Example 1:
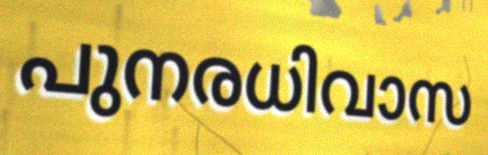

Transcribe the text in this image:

പുനരധിവാസ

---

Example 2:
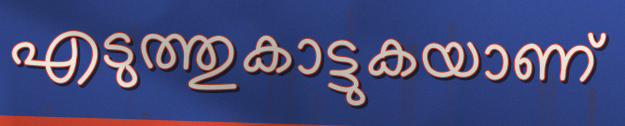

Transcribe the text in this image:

എടുത്തുകാട്ടുകയാണ്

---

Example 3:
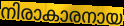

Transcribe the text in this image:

നിരാകാരനായ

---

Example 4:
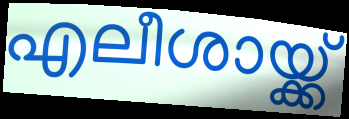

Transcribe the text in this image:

എലീശായ്ക്ക്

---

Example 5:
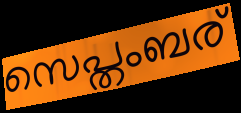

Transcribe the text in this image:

സെപ്തംബര്